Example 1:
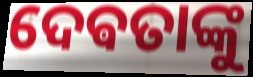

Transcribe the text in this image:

ଦେଵତାଙ୍କୁ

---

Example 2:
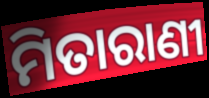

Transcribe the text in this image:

ମିତାରାଣୀ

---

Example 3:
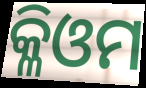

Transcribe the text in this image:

କ୍ଳିଓମ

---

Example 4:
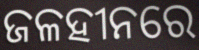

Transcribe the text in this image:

ଜଳହୀନରେ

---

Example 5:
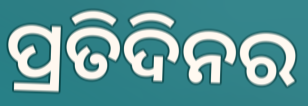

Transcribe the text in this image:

ପ୍ରତିଦିନର